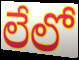
లేలో